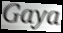
Gaya